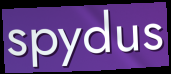
spydus